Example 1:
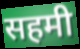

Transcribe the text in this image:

सहमी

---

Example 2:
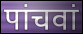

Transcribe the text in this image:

पांचवां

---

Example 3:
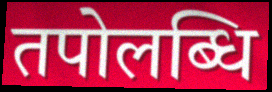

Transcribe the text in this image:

तपोलब्धि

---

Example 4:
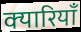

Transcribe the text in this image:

क्यारियाँ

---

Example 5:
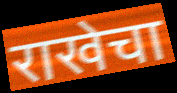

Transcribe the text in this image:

राखेचा